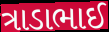
ત્રાડાભાઈ